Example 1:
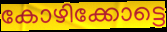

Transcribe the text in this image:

കോഴിക്കോട്ടെ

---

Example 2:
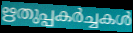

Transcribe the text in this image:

ഋതുപ്പകർച്ചകൾ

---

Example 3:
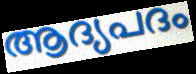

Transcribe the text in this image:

ആദ്യപദം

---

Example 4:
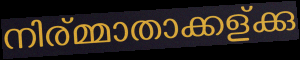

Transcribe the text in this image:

നിര്മ്മാതാക്കള്ക്കു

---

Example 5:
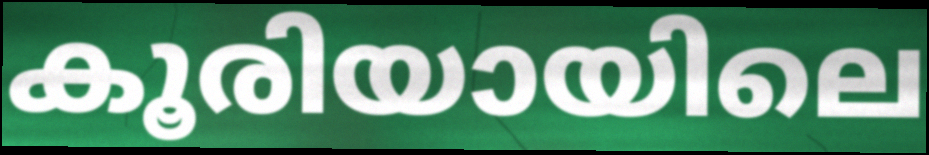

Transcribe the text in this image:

കൂരിയായിലെ